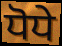
ਧੋਧੇ